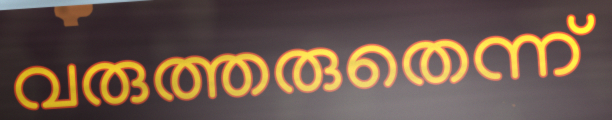
വരുത്തരുതെന്ന്